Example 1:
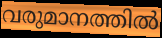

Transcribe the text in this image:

വരുമാനത്തിൽ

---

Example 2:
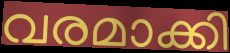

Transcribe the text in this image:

വരമാക്കി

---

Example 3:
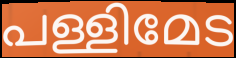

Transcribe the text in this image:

പള്ളിമേട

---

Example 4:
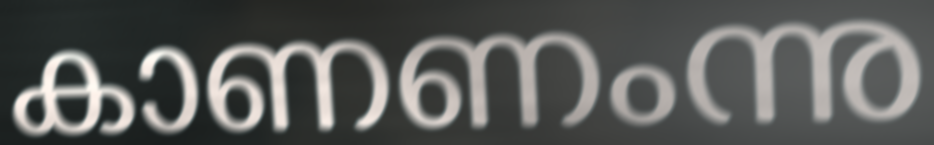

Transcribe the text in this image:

കാണണംന്നു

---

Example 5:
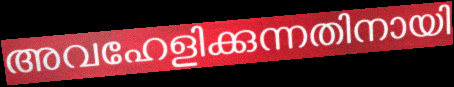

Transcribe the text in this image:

അവഹേളിക്കുന്നതിനായി